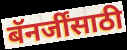
बॅनर्जींसाठी